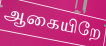
ஆகையிறே